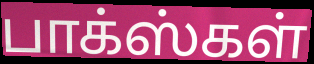
பாக்ஸ்கள்